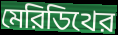
মেরিডিথের